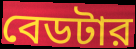
বেডটার